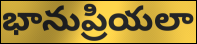
భానుప్రియలా